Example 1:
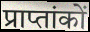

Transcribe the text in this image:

प्राप्तांकों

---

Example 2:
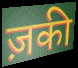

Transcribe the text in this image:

ज़की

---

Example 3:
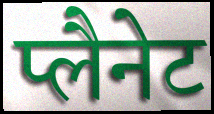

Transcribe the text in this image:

प्लैनेट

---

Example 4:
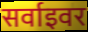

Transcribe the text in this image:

सर्वाइवर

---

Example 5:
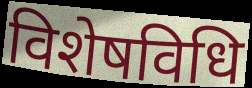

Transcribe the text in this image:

विशेषविधि